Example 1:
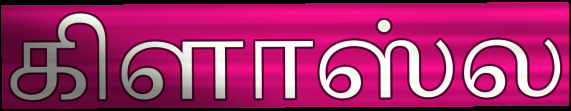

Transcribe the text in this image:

கிளாஸ்ல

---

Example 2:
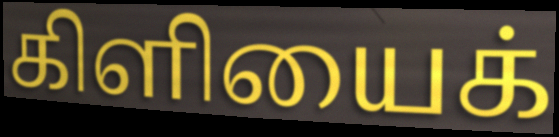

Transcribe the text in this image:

கிளியைக்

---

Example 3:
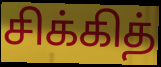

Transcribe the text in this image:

சிக்கித்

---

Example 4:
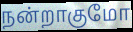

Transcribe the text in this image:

நன்றாகுமோ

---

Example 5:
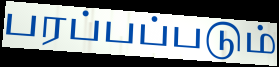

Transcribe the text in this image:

பரப்பப்படும்